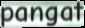
pangat